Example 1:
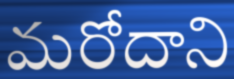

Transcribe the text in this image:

మరోదాని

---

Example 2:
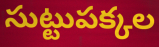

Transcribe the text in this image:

సుట్టుపక్కల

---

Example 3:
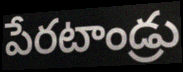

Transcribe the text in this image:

పేరటాండ్రు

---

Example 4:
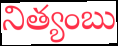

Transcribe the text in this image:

నిత్యంబు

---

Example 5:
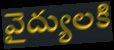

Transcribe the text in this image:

వైద్యులకి